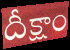
దీక్షాం